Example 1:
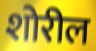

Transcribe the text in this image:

शोरील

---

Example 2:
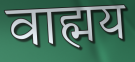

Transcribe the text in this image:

वाह्मय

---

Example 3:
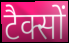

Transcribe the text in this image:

टैक्सों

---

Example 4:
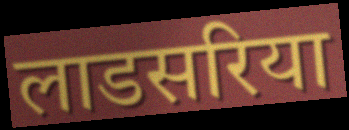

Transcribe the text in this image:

लाडसरिया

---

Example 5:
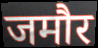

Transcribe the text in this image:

जमौर